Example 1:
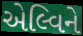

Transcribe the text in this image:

એલ્વિને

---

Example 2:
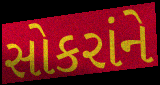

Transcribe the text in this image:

સોકરાંને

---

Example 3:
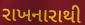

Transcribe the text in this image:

રાખનારાથી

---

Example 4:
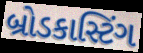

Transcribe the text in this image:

બ્રોડકાસ્ટિંગ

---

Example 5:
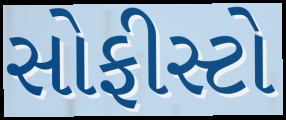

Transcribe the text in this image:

સોફીસ્ટો